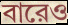
বারেও